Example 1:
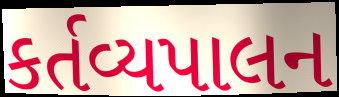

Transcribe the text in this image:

કર્તવ્યપાલન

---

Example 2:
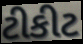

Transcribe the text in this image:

ટીકીટ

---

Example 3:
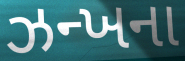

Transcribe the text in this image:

ઝન્ખના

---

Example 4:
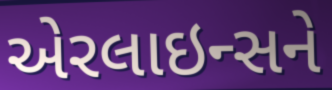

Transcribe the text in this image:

એરલાઇન્સને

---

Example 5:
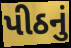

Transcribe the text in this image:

પીઠનું